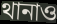
থানাও